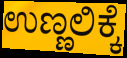
ಉಣ್ಣಲಿಕ್ಕೆ